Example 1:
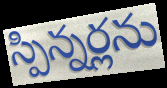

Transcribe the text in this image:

స్పిన్నర్లను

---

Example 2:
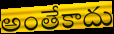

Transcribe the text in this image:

అంతేకాదు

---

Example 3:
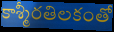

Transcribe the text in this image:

కాశ్మీరతిలకంతో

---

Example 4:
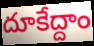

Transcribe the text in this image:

దూకేద్దాం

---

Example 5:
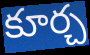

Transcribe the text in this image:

కూర్చ